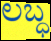
ಲಬ್ಧ